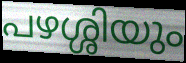
പഴശ്ശിയും